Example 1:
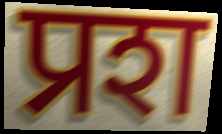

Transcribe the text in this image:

प्रश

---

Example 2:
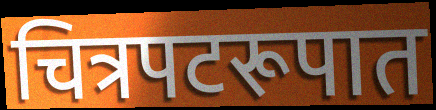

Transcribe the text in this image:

चित्रपटरूपात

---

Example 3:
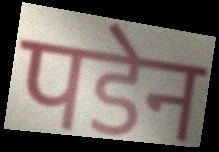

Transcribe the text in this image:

पडेन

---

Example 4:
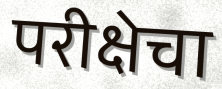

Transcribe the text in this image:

परीक्षेचा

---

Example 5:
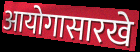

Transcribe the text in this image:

आयोगासारखे